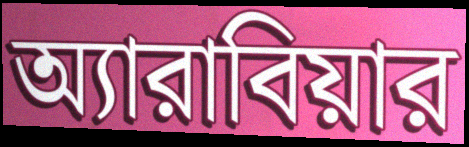
অ্যারাবিয়ার